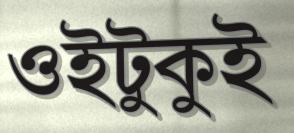
ওইটুকুই